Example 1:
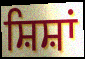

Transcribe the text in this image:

ਸ਼ਿਸ਼ਾਂ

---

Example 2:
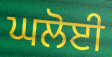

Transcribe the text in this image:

ਘਲੋਈ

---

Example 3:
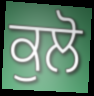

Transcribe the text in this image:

ਕੁਲੋ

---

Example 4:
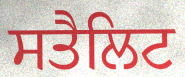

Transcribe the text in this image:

ਸਤੈਲਿਟ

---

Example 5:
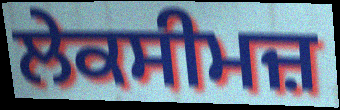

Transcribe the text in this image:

ਲੇਕਸੀਮਜ਼